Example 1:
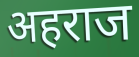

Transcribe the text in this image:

अहराज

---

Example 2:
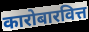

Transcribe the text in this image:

कारोबारवित्त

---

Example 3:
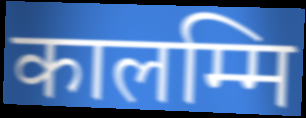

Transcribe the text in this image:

कालम्मि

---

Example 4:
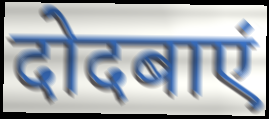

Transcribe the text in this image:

दोदबाएं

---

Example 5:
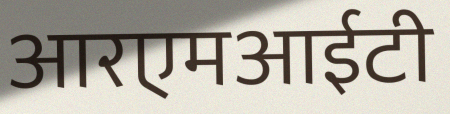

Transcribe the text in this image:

आरएमआईटी